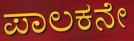
ಪಾಲಕನೇ